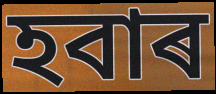
হবাৰ